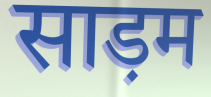
साड़म